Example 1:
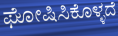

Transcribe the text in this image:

ಘೋಷಿಸಿಕೊಳ್ಳದೆ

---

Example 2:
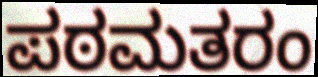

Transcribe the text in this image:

ಪಠಮತರಂ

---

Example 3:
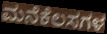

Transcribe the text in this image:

ಮನೆಕೆಲಸಗಳ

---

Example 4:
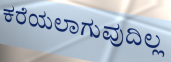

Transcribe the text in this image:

ಕರೆಯಲಾಗುವುದಿಲ್ಲ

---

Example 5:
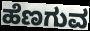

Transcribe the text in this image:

ಹೆಣಗುವ